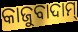
କାଜୁବାଦାମ୍